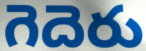
గెదెరు